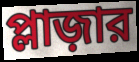
প্লাজ়ার